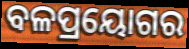
ବଳପ୍ରୟୋଗର